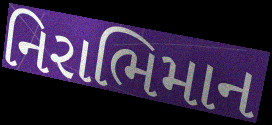
નિરાભિમાન